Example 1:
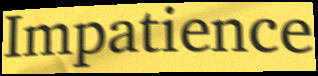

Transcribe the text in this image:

Impatience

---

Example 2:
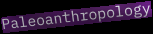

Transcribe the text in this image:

Paleoanthropology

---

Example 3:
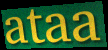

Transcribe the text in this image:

ataa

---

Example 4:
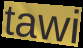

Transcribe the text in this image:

tawi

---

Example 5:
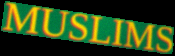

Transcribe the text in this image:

MUSLIMS